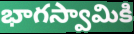
భాగస్వామికి